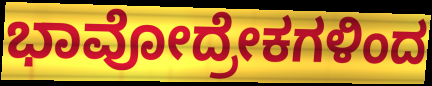
ಭಾವೋದ್ರೇಕಗಳಿಂದ